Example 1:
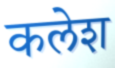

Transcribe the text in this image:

कलेश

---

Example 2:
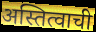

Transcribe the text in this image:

अस्तित्वाची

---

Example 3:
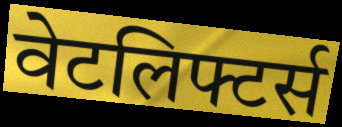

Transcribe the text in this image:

वेटलिफ्टर्स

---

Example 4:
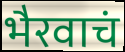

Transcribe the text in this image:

भैरवाचं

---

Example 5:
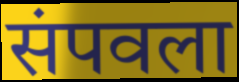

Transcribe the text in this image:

संपवला